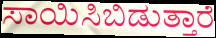
ಸಾಯಿಸಿಬಿಡುತ್ತಾರೆ